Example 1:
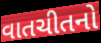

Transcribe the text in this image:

વાતચીતનો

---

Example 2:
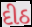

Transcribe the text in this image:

દીઠ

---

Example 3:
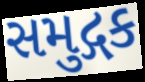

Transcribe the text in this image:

સમુદ્ગક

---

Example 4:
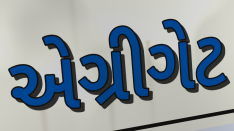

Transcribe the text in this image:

એગ્રીગેટ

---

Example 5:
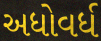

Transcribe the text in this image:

અધોવર્ધ